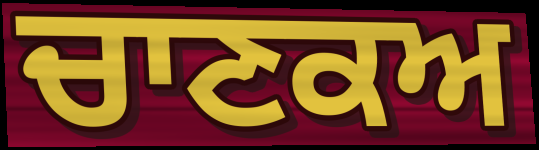
ਚਾਣਕਅ